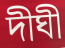
দীঘী